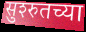
सुश्रुतच्या